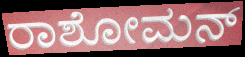
ರಾಶೋಮನ್